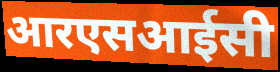
आरएसआईसी